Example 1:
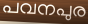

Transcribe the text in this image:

പവനപുര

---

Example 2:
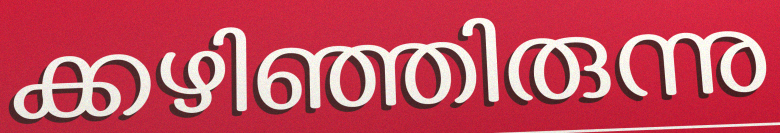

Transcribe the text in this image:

ക്കഴിഞ്ഞിരുന്നു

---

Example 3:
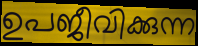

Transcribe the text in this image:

ഉപജീവിക്കുന്ന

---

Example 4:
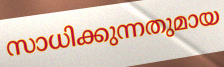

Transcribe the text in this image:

സാധിക്കുന്നതുമായ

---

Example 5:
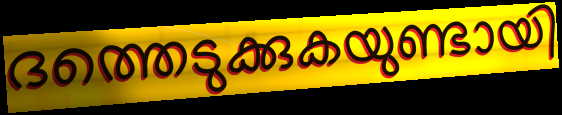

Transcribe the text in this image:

ദത്തെടുക്കുകയുണ്ടായി